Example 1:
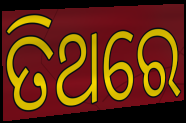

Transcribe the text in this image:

ତିଥରେ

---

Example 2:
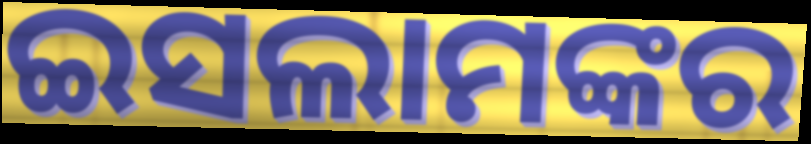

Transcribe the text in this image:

ଇସଲାମଙ୍କର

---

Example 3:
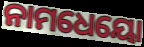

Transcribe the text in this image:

ନାମଧେୟୋ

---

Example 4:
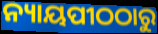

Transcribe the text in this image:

ନ୍ୟାୟପୀଠଠାରୁ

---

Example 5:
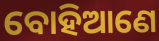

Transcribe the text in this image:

ବୋହିଆଣେ